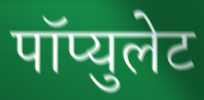
पॉप्युलेट